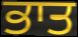
ਭਾਤ